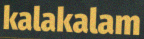
kalakalam